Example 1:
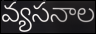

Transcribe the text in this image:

వ్యసనాల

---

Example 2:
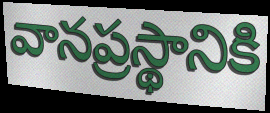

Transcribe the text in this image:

వానప్రస్థానికి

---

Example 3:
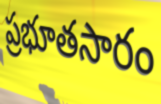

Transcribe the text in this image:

ప్రభూతసారం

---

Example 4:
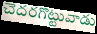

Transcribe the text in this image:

చెదరగొట్టువాడు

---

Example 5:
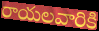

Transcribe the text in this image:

రాయలవారికి